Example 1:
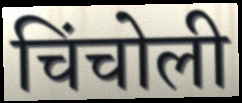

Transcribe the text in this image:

चिंचोली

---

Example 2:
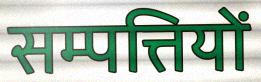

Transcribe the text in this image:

सम्‍पत्तियों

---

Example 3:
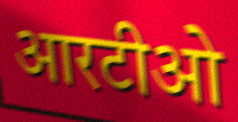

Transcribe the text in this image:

आरटीओ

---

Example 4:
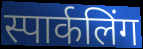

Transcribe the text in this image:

स्पार्कलिंग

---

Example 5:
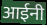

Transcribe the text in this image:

आईनी